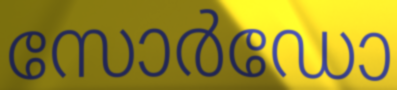
സോർഡോ